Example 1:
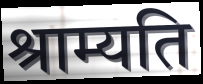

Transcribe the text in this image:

श्राम्यति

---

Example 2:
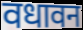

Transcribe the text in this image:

वधावन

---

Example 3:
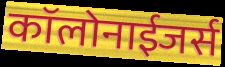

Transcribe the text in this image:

कॉलोनाईजर्स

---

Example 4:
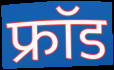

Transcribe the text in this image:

फ्रॉड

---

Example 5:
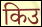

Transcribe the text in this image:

किउ